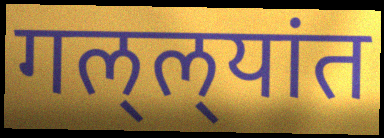
गल्ल्यांत